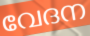
വേദന